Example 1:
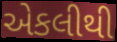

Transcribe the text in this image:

એકલીથી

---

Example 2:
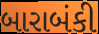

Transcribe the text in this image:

બારાબંકી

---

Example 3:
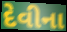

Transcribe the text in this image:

દેવીના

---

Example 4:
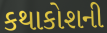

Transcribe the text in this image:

કથાકોશની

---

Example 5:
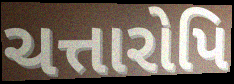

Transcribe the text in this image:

ચત્તારોપિ